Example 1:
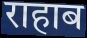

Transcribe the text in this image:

राहाब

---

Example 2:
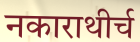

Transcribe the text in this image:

नकाराथीर्च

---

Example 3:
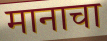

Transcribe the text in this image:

मानाचा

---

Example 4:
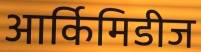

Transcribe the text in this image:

आर्किमिडीज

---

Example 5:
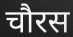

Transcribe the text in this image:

चौरस